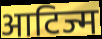
आटिज्म